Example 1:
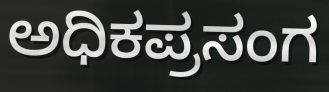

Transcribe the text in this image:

ಅಧಿಕಪ್ರಸಂಗ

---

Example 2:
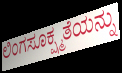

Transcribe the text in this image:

ಲಿಂಗಸೂಕ್ಷ್ಮತೆಯನ್ನು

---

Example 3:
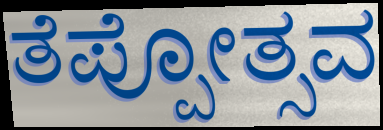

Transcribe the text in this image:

ತೆಪ್ಪೋತ್ಸವ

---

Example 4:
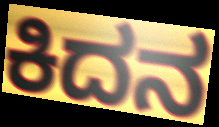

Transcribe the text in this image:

ಕಿದನ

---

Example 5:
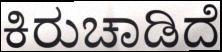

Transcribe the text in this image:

ಕಿರುಚಾಡಿದೆ